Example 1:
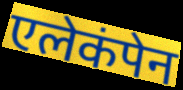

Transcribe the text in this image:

एलेकंपेन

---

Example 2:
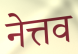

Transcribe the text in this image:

नेत्तव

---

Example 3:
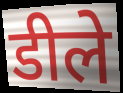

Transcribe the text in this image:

डीले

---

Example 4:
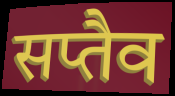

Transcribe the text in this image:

सप्तैव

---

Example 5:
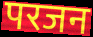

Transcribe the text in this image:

परजन